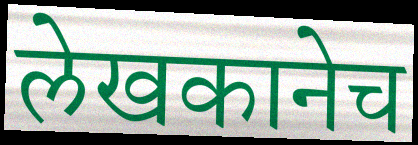
लेखकानेच